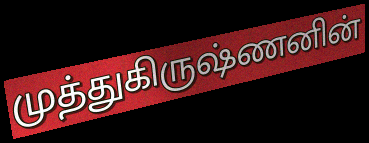
முத்துகிருஷ்ணனின்